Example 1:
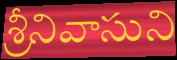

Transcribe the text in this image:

శ్రీనివాసుని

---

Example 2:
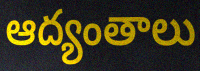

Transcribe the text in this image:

ఆద్యంతాలు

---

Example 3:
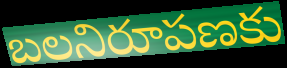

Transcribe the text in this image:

బలనిరూపణకు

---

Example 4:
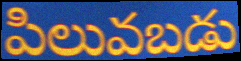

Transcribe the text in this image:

పిలువబడు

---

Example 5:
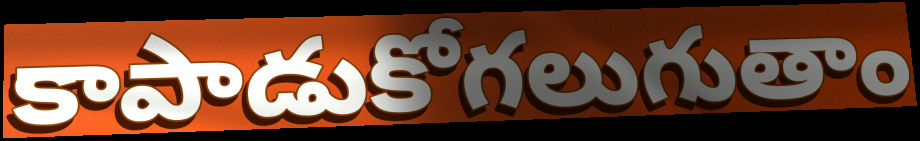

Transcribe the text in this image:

కాపాడుకోగలుగుతాం